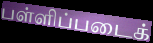
பள்ளிப்படைக்